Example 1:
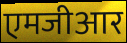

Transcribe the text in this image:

एमजीआर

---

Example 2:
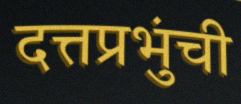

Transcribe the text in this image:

दत्तप्रभुंची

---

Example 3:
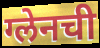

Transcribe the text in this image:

ग्लेनची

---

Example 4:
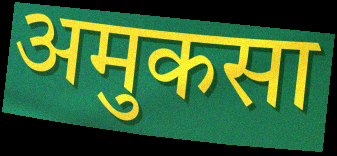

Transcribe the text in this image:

अमुकसा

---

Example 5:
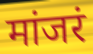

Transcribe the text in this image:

मांजरं